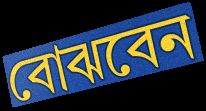
বোঝবেন